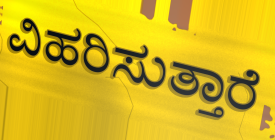
ವಿಹರಿಸುತ್ತಾರೆ